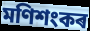
মণিশংকৰ